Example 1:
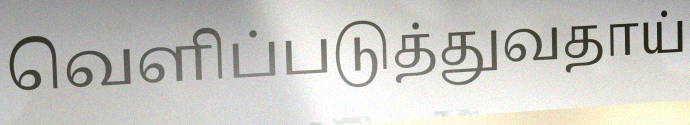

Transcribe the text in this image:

வெளிப்படுத்துவதாய்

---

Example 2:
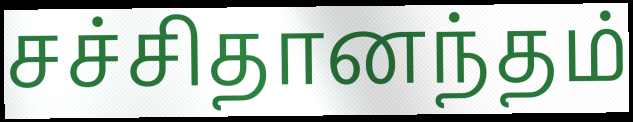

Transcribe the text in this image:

சச்சிதானந்தம்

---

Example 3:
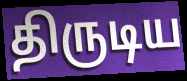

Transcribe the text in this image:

திருடிய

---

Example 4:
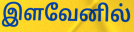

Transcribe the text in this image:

இளவேனில்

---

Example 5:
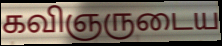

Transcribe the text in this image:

கவிஞருடைய